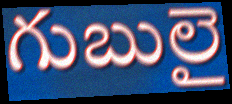
గుబులై